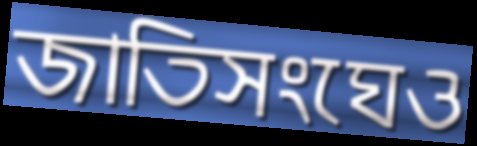
জাতিসংঘেও